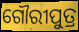
ଗୌରୀପୁତ୍ର